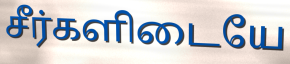
சீர்களிடையே